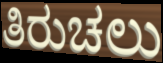
ತಿರುಚಲು